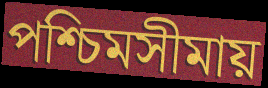
পশ্চিমসীমায়